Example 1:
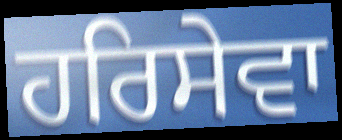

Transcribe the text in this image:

ਹਰਿਸੇਵਾ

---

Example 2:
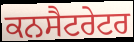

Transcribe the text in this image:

ਕਨਸੈਟਰੇਟਰ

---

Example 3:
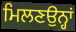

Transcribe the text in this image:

ਮਿਲਣਉਨ੍ਹਾਂ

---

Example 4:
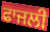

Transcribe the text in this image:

ਫਾਜਲੀ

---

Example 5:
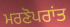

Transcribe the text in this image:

ਮਰਣੋਪਰਾਂਤ